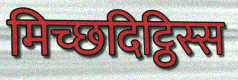
मिच्छदिट्ठिस्स